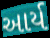
આર્ય